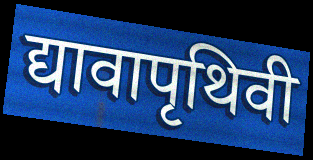
द्यावापृथिवी